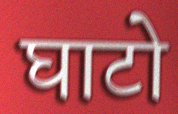
घाटो